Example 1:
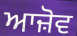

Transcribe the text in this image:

ਆਜ਼ੋਵ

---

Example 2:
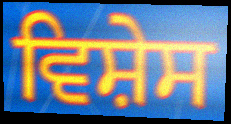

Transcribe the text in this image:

ਵਿਸ਼ੇਸ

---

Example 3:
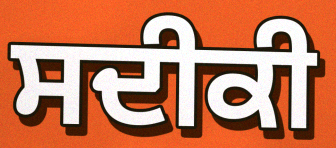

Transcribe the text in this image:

ਸਦੀਕੀ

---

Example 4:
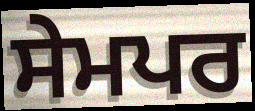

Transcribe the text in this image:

ਸੇਮਪਰ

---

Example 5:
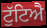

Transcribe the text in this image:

ਟੁੱਟਿਐ